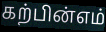
கற்பின்எம்